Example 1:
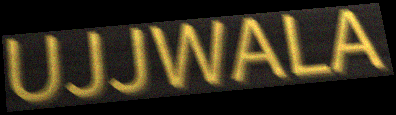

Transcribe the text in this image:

UJJWALA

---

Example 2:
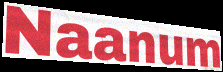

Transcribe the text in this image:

Naanum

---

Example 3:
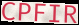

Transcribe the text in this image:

CPFIR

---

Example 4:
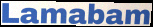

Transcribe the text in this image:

Lamabam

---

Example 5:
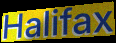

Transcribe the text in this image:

Halifax